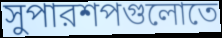
সুপারশপগুলোতে